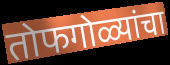
तोफगोळ्यांचा